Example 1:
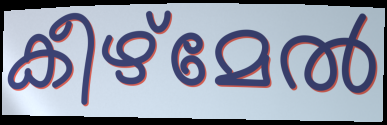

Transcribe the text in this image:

കീഴ്മേൽ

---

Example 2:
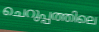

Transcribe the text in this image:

ചെറുപ്പത്തിലെ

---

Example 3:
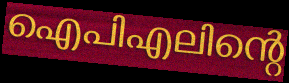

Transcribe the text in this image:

ഐപിഎലിന്റെ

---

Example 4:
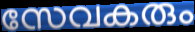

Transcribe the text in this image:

സേവകരും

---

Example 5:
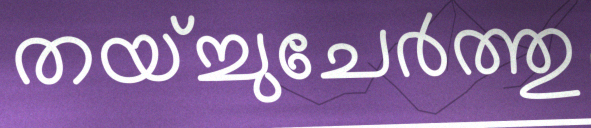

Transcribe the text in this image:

തയ്ച്ചുചേർത്തു